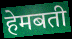
हेमबती